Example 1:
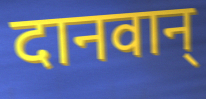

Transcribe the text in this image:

दानवान्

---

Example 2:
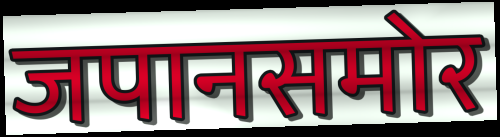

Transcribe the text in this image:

जपानसमोर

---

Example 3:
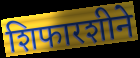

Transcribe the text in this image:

शिफारशीने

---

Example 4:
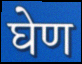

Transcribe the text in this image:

घेण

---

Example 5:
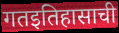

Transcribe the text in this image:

गतइतिहासाची